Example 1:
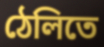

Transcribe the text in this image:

ঠেলিতে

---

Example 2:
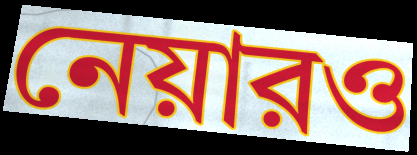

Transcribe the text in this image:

নেয়ারও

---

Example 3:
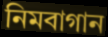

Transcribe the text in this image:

নিমবাগান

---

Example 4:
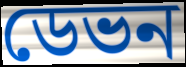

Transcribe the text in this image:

ডেভন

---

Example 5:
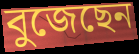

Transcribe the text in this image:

বুজেছেন